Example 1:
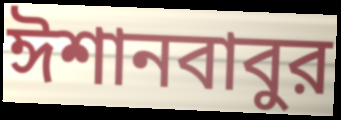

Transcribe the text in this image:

ঈশানবাবুর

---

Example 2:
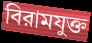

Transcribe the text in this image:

বিরামযুক্ত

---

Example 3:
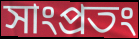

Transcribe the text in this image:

সাংপ্রতং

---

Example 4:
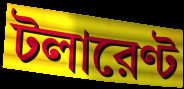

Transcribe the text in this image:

টলারেণ্ট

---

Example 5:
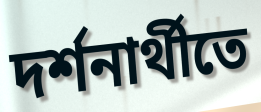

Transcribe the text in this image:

দর্শনার্থীতে